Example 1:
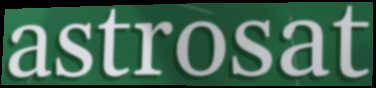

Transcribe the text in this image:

astrosat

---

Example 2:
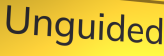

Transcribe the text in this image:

Unguided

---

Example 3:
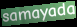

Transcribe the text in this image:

samayada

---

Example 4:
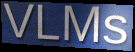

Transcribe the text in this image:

VLMs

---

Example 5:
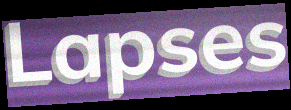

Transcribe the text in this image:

Lapses